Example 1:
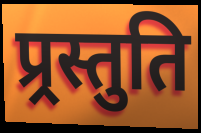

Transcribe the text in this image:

प्र्रस्तुति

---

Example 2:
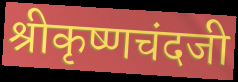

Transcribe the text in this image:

श्रीकृष्णचंदजी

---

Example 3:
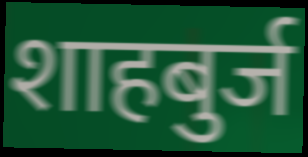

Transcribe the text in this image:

शाहबुर्ज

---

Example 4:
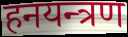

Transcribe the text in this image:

हनयन्त्रण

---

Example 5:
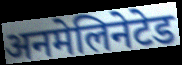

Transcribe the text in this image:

अनमेलिनेटेड